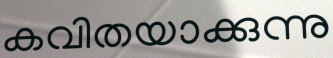
കവിതയാക്കുന്നു